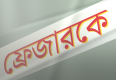
ফ্রেজারকে